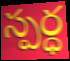
స్పర్ధ